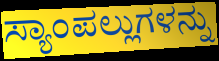
ಸ್ಯಾಂಪಲ್ಲುಗಳನ್ನು